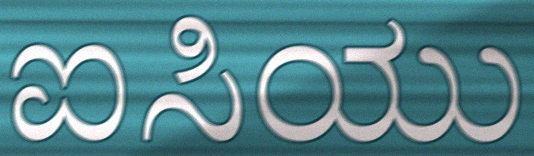
ಐಸಿಯು